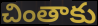
చింతాకు